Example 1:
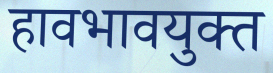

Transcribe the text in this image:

हावभावयुक्त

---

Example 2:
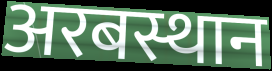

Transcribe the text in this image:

अरबस्थान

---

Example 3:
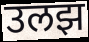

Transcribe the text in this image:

उलझ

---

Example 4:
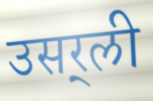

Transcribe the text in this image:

उसर्ली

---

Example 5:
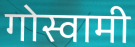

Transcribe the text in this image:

गोस्वामी